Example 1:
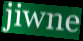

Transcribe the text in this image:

jiwne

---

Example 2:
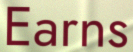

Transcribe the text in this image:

Earns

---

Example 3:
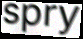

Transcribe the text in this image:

spry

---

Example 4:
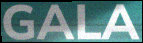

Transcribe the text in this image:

GALA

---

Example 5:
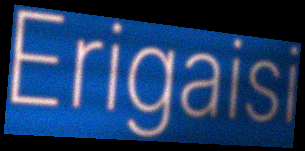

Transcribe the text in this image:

Erigaisi